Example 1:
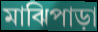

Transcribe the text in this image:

মাঝিপাড়া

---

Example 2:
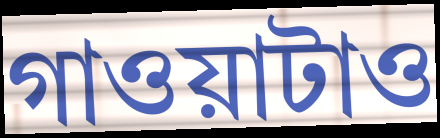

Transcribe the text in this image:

গাওয়াটাও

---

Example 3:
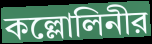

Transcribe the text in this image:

কল্লোলিনীর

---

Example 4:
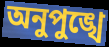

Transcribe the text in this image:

অনুপুঙ্খে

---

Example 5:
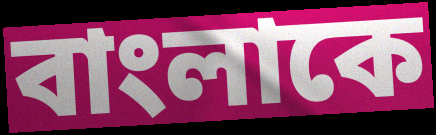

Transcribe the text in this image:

বাংলাকে